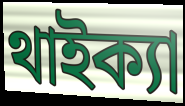
থাইক্যা